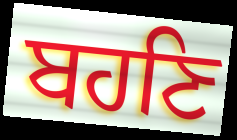
ਬਹਣਿ